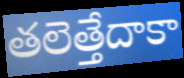
తలెత్తేదాకా